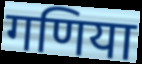
गणिया